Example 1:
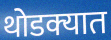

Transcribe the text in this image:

थोडक्‍यात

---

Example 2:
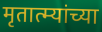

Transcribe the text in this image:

मृतात्म्यांच्या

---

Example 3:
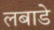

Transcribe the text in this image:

लबाडे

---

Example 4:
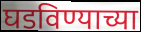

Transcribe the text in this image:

घडविण्याच्या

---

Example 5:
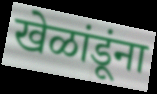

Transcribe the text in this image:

खेळांडूंना